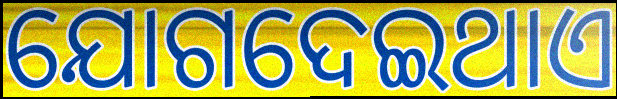
ଯୋଗଦେଇଥାଏ